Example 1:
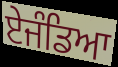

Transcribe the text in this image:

ਏਜੰਡਿਆ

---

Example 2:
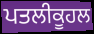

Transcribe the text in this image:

ਪਤਲੀਕੂਹਲ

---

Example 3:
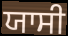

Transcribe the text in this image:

ਯਾਸੀ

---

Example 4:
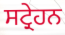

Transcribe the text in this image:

ਸਟ੍ਰੇਹਨ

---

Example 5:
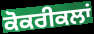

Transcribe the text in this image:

ਕੋਕਰੀਕਲਾਂ